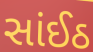
સાંઈઠ